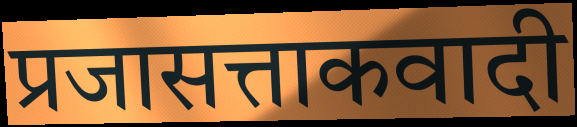
प्रजासत्ताकवादी